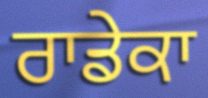
ਰਾਡੇਕਾ